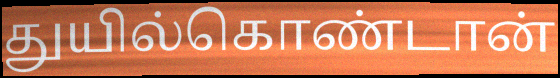
துயில்கொண்டான்